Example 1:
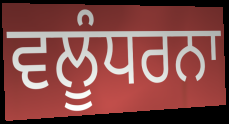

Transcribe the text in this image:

ਵਲੂੰਧਰਨਾ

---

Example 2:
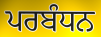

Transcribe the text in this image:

ਪਰਬੰਧਨ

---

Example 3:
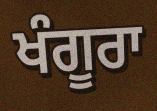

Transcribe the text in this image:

ਖੰਗੂਰਾ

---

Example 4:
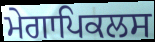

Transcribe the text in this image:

ਮੇਗਾਪਿਕਲਸ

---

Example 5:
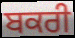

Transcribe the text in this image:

ਬਕਰੀ